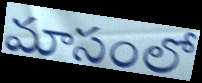
మాసంలో